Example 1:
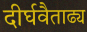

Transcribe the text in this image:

दीर्घवैताढ्य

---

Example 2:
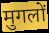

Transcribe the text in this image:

मुगलों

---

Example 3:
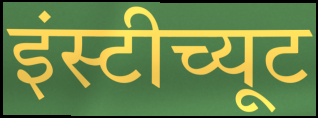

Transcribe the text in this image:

इंस्‍टीच्‍यूट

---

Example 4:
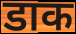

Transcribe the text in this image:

डाक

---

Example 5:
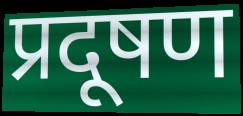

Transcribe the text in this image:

प्रदूषण